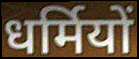
धर्मियों